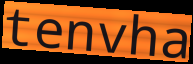
tenvha